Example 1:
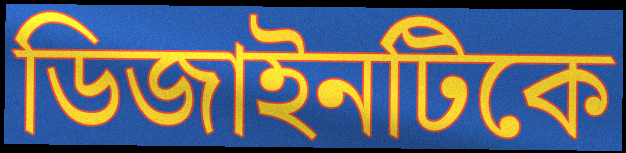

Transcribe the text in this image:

ডিজাইনটিকে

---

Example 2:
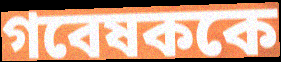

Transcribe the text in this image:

গবেষককে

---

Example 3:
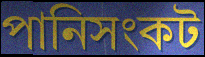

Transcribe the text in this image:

পানিসংকট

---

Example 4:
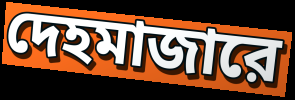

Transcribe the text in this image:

দেহমাজারে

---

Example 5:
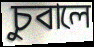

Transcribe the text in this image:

চুবালে